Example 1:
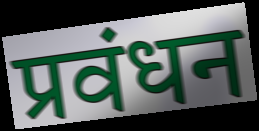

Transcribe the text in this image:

प्रवंधन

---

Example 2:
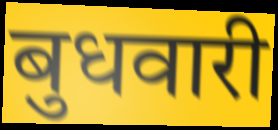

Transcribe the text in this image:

बुधवारी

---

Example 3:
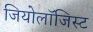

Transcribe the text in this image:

जियोलॉजिस्ट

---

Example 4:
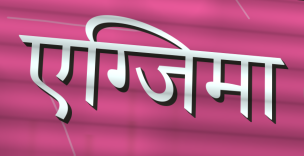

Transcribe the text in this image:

एग्जिमा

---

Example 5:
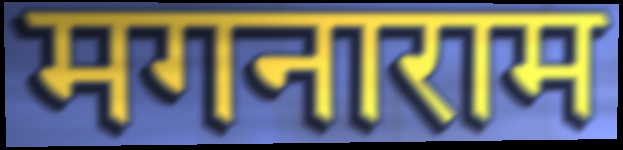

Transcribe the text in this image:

मगनाराम